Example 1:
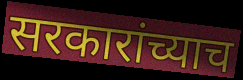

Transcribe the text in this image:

सरकारांच्याच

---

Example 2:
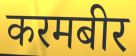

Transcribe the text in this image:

करमबीर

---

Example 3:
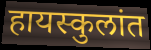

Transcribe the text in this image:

हायस्कुलांत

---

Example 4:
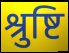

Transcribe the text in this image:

श्रुष्टि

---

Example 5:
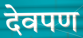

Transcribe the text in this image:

देवपण